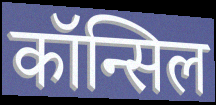
कॉन्सिल